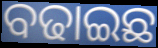
ବଢାଇଛ